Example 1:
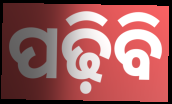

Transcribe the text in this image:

ପଢ଼ିବି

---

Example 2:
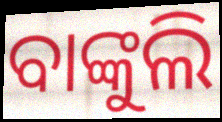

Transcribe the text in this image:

ବାଙ୍କୁଲି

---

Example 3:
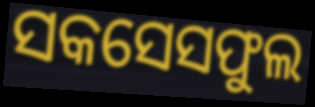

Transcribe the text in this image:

ସକସେସଫୁଲ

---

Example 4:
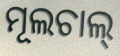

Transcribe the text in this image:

ମୂଲଚାଲ୍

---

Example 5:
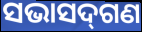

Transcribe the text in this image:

ସଭାସଦ୍‍ଗଣ